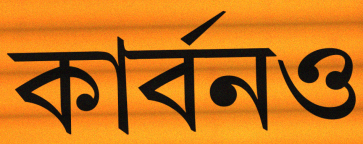
কার্বনও